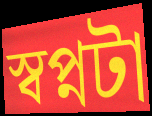
স্বপ্নটা